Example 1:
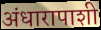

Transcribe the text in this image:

अंधारापाशी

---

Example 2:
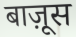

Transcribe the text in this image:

बाज़ूस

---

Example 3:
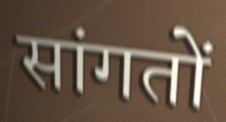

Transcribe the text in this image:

सांगतों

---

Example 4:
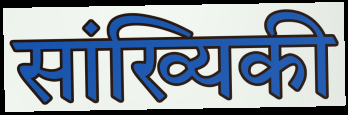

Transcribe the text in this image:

सांख्यिकी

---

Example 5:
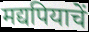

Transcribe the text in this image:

मद्यपियाचें